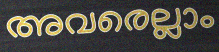
അവരെല്ലാം